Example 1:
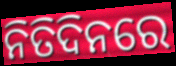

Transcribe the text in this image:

ନିତିଦିନରେ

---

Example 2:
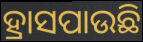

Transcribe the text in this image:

ହ୍ରାସପାଉଛି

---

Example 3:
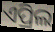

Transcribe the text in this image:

ଏପ୍ରିଲ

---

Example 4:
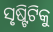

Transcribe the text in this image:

ସୃଷ୍ଟିଟିକୁ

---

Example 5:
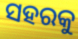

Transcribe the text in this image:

ସହରକୁ